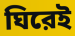
ঘিরেই